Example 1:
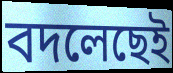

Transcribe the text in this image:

বদলেছেই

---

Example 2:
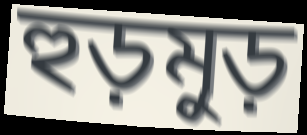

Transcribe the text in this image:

হুড়মুড়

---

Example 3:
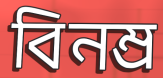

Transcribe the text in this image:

বিনম্র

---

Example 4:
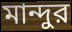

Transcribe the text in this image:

মান্দুর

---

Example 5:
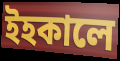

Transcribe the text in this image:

ইহকালে